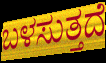
ಬಳಸುತ್ತದೆ